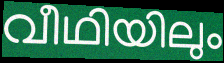
വീഥിയിലും